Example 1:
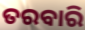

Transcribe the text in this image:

ତରବାରି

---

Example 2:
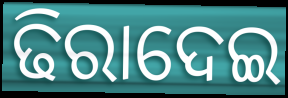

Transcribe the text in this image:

ଢିରାଦେଇ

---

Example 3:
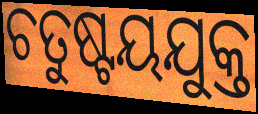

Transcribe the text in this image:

ଚତୁଷ୍ଟୟଯୁକ୍ତ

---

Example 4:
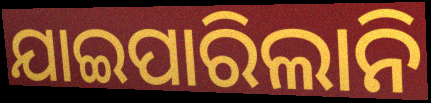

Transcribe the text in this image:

ଯାଇପାରିଲାନି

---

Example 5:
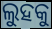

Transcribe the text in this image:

ଲୁହକୁ